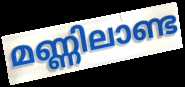
മണ്ണിലാണ്ട